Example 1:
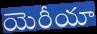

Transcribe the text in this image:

యెరీయా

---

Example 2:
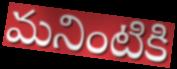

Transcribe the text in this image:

మనింటికి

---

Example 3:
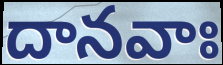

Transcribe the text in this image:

దానవాః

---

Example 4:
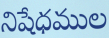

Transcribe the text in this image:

నిషేధముల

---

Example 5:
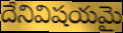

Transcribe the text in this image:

దేనివిషయమై